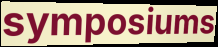
symposiums